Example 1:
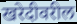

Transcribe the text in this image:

खरेदीवरील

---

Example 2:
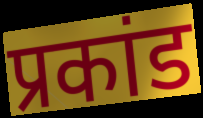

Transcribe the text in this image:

प्रकांड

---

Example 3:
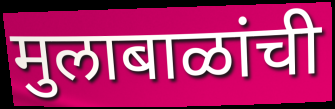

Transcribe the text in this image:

मुलाबाळांची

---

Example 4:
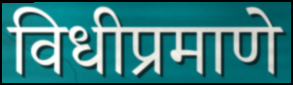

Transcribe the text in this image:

विधीप्रमाणे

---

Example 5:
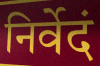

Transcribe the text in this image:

निर्वेदं